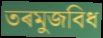
তৰমুজবিধ